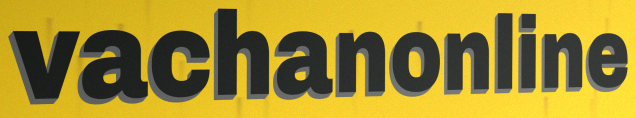
vachanonline